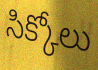
సిక్కోలు